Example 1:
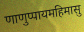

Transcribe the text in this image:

णाणुप्पायमहिमासु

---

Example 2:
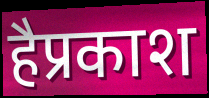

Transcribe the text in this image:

हैप्रकाश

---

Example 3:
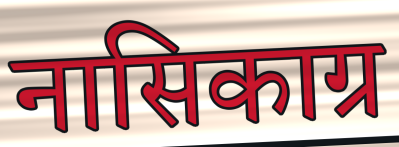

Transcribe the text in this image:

नासिकाग्र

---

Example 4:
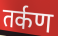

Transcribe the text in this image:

तर्कण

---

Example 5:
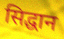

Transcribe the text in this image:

सिद्धान